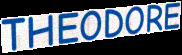
THEODORE